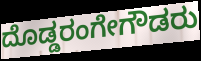
ದೊಡ್ಡರಂಗೇಗೌಡರು